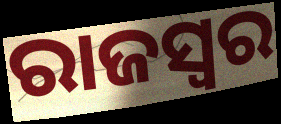
ରାଜସ୍ବର